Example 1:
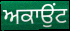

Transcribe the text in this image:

ਅਕਾਉਂਟ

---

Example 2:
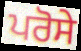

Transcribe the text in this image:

ਪਰੋਸੇ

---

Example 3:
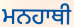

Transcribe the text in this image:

ਮਨਹਾਥੀ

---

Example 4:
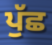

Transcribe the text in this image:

ਪੁੱਛ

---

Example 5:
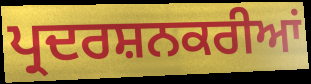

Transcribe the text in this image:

ਪ੍ਰਦਰਸ਼ਨਕਰੀਆਂ